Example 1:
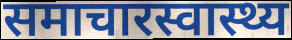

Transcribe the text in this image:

समाचारस्वास्थ्य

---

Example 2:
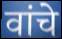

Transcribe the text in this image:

वांचे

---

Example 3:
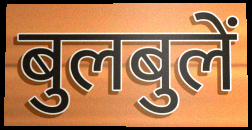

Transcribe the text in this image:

बुलबुलें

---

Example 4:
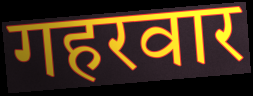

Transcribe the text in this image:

गहरवार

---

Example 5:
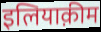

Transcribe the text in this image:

इलियाक़ीम